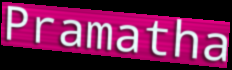
Pramatha